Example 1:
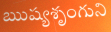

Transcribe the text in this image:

ఋష్యశృంగుని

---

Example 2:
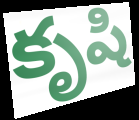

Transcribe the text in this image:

కృషి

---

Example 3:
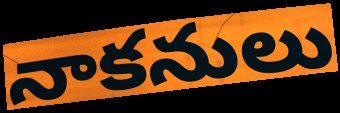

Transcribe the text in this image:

నాకనులు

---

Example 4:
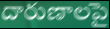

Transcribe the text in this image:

దారుణాలపై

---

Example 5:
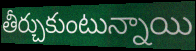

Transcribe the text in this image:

తీర్చుకుంటున్నాయి